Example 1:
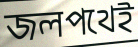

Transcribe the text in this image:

জলপথেই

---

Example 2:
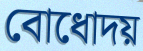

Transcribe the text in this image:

বোধোদয়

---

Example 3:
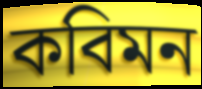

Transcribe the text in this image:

কবিমন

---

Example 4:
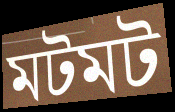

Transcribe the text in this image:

মটমট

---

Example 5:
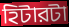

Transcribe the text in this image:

হিটারটা